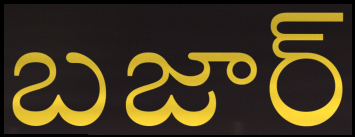
బజార్